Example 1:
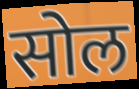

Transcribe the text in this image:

सोल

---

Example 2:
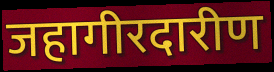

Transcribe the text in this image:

जहागीरदारीण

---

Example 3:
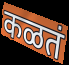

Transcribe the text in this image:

कळतं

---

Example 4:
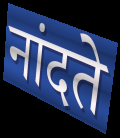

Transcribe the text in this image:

नांदते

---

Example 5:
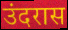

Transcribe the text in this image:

उंदरास